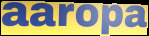
aaropa